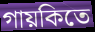
গায়কিতে